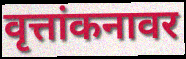
वृत्तांकनावर